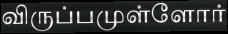
விருப்பமுள்ளோர்